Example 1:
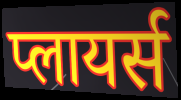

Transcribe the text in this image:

प्लायर्स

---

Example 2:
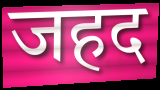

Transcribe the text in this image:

जहद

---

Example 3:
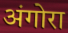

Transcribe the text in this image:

अंगोरा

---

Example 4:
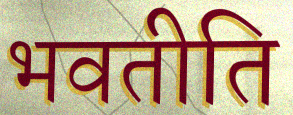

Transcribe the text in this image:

भवतीति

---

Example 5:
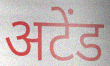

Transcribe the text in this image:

अटेंड